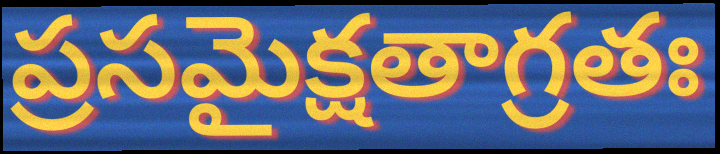
ప్రసమైక్షతాగ్రతః